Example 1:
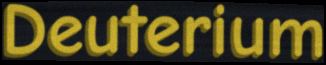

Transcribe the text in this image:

Deuterium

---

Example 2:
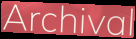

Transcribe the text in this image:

Archival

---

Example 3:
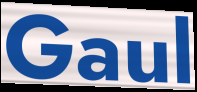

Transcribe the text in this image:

Gaul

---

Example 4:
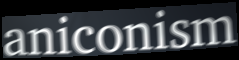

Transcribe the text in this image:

aniconism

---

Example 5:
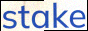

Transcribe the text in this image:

stake